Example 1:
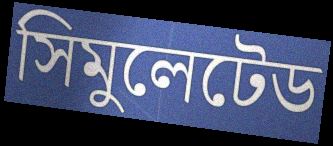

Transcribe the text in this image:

সিমুলেটেড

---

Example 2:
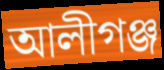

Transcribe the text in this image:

আলীগঞ্জ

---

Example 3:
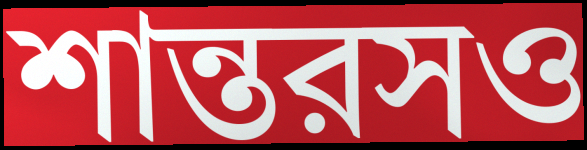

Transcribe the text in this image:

শান্তরসও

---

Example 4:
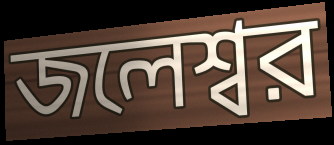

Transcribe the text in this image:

জলেশ্বর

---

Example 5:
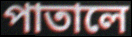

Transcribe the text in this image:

পাতালে